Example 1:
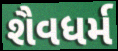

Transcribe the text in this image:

શૈવધર્મ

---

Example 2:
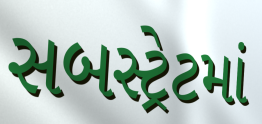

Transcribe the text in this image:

સબસ્ટ્રેટમાં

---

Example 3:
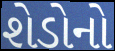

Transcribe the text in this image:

શેડોનો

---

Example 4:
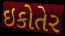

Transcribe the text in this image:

ઇકોતેર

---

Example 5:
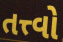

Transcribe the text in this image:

તત્ત્વો